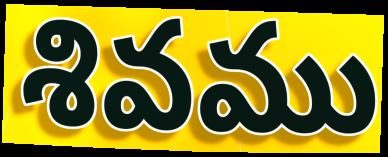
శివము